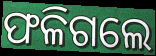
ଫଳିଗଲେ